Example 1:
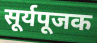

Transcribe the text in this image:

सूर्यपूजक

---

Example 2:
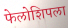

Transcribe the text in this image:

फेलोशिपला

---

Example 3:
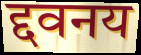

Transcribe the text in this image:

द्दवनय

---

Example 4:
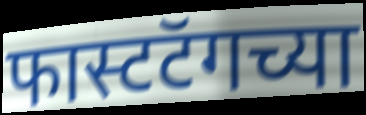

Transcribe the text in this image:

फास्टटॅगच्या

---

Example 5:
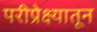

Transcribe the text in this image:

परीप्रेक्ष्यातून